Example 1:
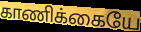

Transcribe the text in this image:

காணிக்கையே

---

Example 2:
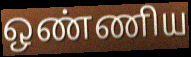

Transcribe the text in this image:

ஒண்ணிய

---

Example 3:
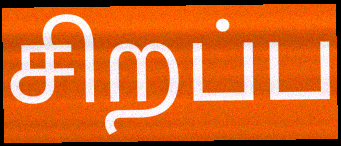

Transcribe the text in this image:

சிறப்ப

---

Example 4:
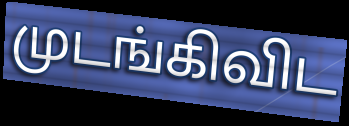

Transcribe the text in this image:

முடங்கிவிட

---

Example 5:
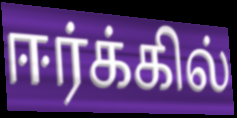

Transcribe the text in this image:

ஈர்க்கில்